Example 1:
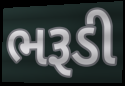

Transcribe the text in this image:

ભરૂડી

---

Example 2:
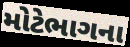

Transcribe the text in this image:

મોટેભાગના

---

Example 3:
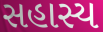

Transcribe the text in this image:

સહાસ્ય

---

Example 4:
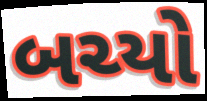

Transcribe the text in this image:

બચ્યો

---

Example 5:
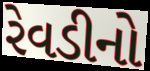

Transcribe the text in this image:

રેવડીનો